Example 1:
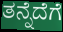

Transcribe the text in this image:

ತನ್ನೆದೆಗೆ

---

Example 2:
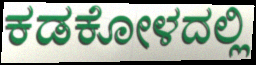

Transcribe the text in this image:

ಕಡಕೋಳದಲ್ಲಿ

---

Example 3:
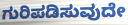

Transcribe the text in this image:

ಗುರಿಪಡಿಸುವುದೇ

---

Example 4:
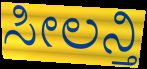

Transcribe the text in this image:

ಸೀಲನ್ತಿ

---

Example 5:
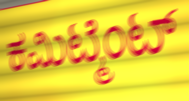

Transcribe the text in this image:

ಕಮಿಟ್ಮೆಂಟ್